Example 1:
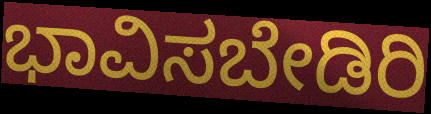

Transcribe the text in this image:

ಭಾವಿಸಬೇಡಿರಿ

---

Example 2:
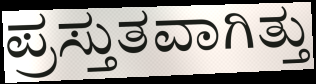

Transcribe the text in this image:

ಪ್ರಸ್ತುತವಾಗಿತ್ತು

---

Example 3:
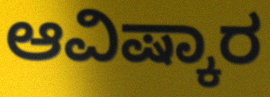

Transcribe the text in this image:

ಆವಿಷ್ಕಾರ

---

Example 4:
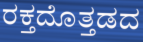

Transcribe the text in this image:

ರಕ್ತದೊತ್ತಡದ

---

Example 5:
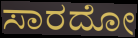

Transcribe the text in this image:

ಸಾರದೋ